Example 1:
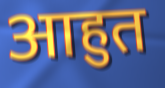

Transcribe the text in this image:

आहुत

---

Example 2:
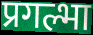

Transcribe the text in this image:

प्रगल्भा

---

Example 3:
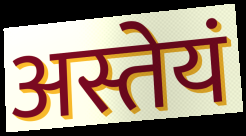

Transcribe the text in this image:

अस्तेयं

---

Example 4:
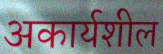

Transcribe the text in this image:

अकार्यशील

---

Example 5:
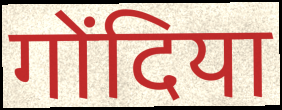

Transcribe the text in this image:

गोंदिया